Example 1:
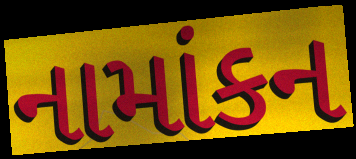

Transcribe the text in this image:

નામાંકન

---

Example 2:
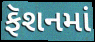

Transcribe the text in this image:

ફૅશનમાં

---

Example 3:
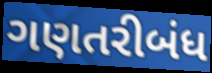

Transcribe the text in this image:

ગણતરીબંધ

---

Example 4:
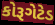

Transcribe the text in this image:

કોરૂગેટેડ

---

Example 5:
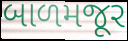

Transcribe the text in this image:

બાળમજૂર